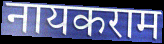
नायकराम